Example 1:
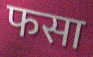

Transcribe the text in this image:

फसा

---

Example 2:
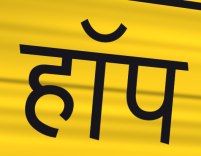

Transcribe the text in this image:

हॉप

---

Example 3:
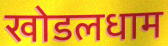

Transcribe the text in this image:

खोडलधाम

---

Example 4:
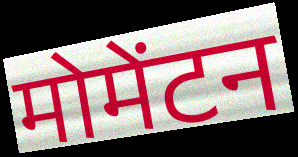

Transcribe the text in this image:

मोमेंटन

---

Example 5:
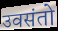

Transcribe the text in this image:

उवसंतो